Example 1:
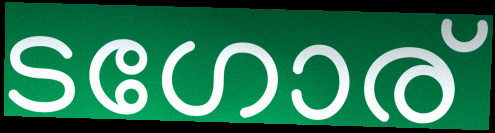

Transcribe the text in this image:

ടഗോര്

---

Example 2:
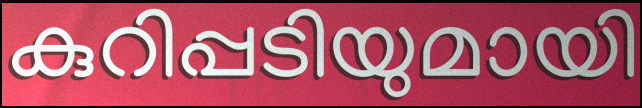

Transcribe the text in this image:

കുറിപ്പടിയുമായി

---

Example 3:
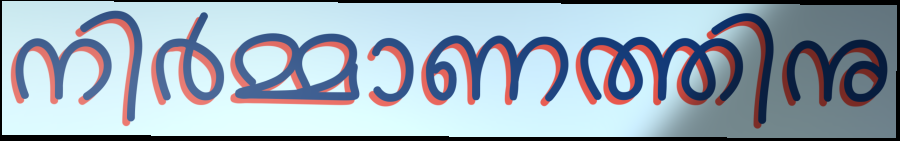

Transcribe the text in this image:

നിർമ്മാണത്തിനു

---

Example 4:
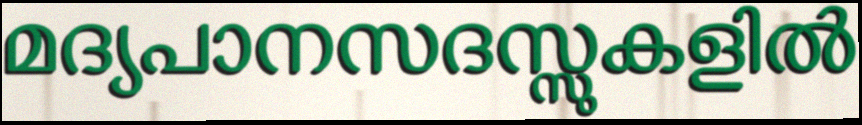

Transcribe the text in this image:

മദ്യപാനസദസ്സുകളിൽ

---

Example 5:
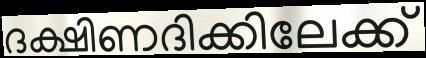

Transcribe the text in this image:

ദക്ഷിണദിക്കിലേക്ക്